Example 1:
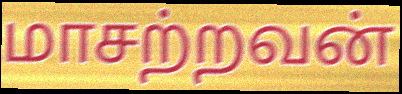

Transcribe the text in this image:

மாசற்றவன்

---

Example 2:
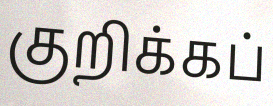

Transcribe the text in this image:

குறிக்கப்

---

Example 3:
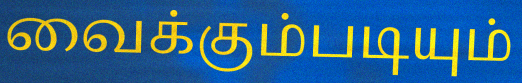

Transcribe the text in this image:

வைக்கும்படியும்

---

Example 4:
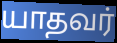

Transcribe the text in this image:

யாதவர்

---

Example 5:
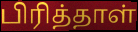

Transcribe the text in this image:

பிரித்தாள்